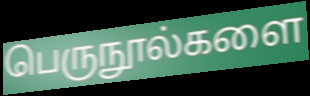
பெருநூல்களை